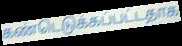
கண்டெடுக்கப்பட்டதாக